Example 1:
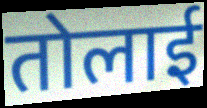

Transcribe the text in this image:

तोलाई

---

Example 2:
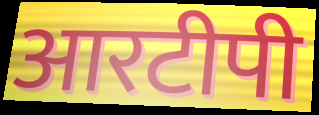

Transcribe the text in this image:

आरटीपी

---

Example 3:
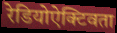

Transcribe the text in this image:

रेडियोऐक्टिवता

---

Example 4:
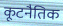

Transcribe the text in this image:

कूटनैतिक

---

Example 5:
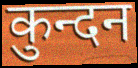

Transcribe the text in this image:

कुन्दन